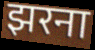
झरना